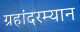
ग्रहांदरम्यान